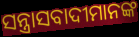
ସନ୍ତ୍ରାସବାଦୀମାନଙ୍କ